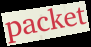
packet